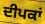
ਦੀਪਕਾਂ